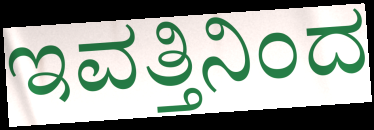
ಇವತ್ತಿನಿಂದ